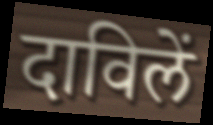
दाविलें